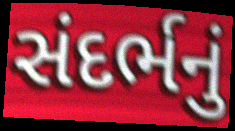
સંદર્ભનું